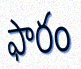
ఫారం